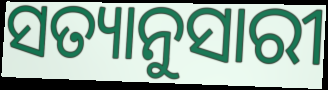
ସତ୍ୟାନୁସାରୀ